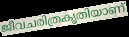
ജീവചരിത്രകൃതിയാണ്